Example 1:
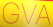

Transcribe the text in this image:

GVA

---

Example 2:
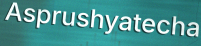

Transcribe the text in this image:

Asprushyatecha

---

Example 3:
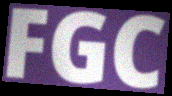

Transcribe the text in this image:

FGC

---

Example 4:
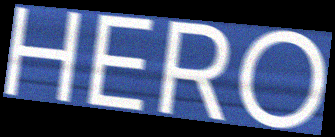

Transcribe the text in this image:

HERO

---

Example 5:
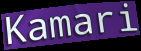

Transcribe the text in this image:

Kamari